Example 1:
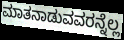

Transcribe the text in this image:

ಮಾತನಾಡುವವರನ್ನೆಲ್ಲ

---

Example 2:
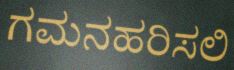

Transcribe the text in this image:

ಗಮನಹರಿಸಲಿ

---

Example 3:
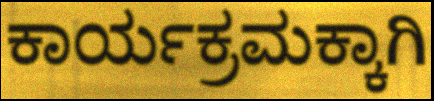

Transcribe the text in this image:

ಕಾರ್ಯಕ್ರಮಕ್ಕಾಗಿ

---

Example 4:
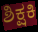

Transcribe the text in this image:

ಶಿಕ್ಷಕಿ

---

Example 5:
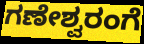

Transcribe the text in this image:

ಗಣೇಶ್ವರಂಗೆ